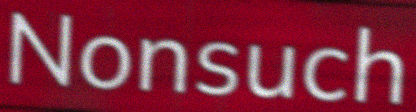
Nonsuch